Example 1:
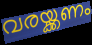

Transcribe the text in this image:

വരയ്ക്കണം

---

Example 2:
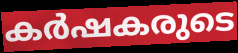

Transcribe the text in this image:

കർഷകരുടെ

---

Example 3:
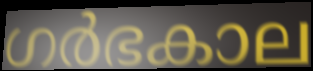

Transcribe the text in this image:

ഗർഭകാല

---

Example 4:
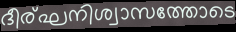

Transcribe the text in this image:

ദീര്ഘനിശ്വാസത്തോടെ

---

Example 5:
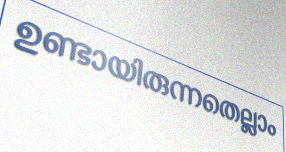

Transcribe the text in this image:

ഉണ്ടായിരുന്നതെല്ലാം